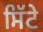
ਸਿੱਟੇ